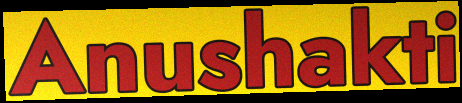
Anushakti